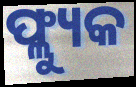
ଫ୍ଲ୍ୟୁକ